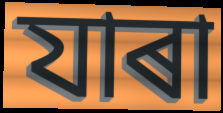
যাৰা